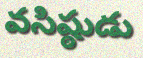
వసిష్ఠుడు